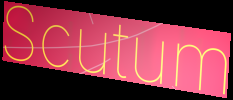
Scutum